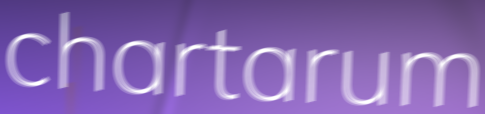
chartarum